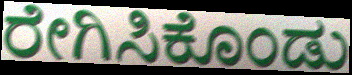
ರೇಗಿಸಿಕೊಂಡು